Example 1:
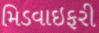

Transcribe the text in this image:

મિડવાઇફરી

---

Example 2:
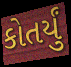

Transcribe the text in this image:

કોતર્યું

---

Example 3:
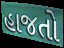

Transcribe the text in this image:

હાજતો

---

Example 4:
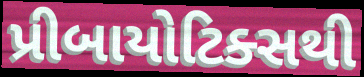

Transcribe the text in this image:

પ્રીબાયોટિક્સથી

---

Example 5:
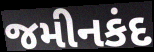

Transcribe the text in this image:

જમીનકંદ